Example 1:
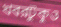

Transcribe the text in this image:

খবরটুকুও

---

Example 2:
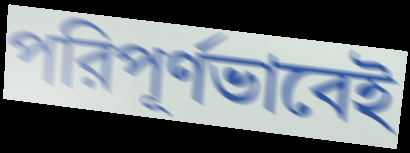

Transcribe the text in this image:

পরিপূর্ণভাবেই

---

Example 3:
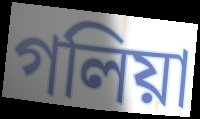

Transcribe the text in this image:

গলিয়া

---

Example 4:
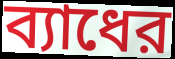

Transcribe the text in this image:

ব্যাধের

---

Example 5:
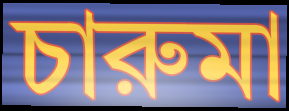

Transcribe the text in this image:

চারুমা